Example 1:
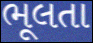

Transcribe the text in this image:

ભૂલતા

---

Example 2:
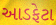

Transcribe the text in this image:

આડફેટા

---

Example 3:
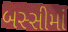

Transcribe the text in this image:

બસ્સીમાં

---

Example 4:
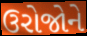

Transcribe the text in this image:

ઉરોજોને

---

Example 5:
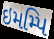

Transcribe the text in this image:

ઇમમ્પિ